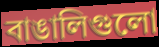
বাঙালিগুলো